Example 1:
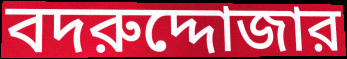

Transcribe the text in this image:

বদরুদ্দোজার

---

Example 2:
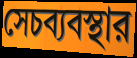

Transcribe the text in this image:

সেচব্যবস্থার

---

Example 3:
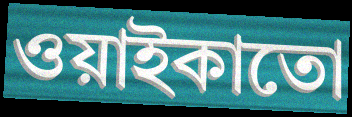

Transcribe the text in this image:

ওয়াইকাতো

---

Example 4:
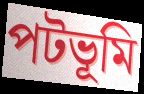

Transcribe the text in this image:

পটভূমি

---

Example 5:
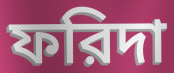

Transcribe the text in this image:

ফরিদা